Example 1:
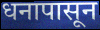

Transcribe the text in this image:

धनापासून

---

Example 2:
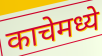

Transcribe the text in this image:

काचेमध्ये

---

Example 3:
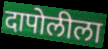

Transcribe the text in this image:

दापोलीला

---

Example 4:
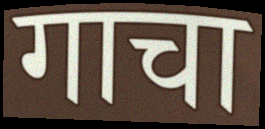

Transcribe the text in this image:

गाचा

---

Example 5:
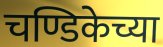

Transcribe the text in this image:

चण्डिकेच्या